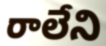
రాలేని